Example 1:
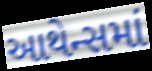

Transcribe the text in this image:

આથેન્સમાં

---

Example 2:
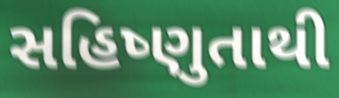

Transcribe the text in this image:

સહિષ્ણુતાથી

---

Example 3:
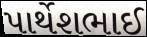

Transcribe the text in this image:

પાર્થેશભાઈ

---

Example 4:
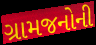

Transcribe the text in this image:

ગ્રામજનોની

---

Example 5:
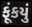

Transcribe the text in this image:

ફૂંકયું